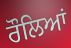
ਰੌਲਿਆਂ